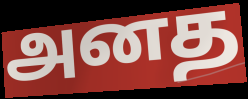
அனத